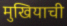
मुखियाची